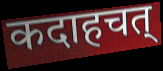
कदाहचत्